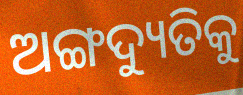
ଅଙ୍ଗଦ୍ୟୁତିକୁ